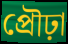
প্রৌঢ়া